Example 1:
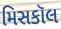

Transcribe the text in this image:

મિસકૉલ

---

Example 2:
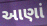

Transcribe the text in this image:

આણાં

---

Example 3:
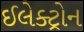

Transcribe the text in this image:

ઈલેક્ટ્રોન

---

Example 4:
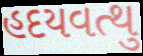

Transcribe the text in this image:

હદયવત્થુ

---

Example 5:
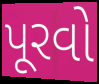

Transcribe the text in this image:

પૂરવો